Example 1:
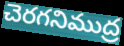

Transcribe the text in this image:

చెరగనిముద్ర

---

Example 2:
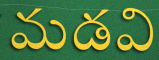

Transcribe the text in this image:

మడవి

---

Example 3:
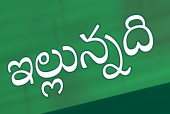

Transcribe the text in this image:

ఇల్లున్నది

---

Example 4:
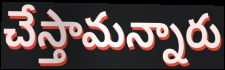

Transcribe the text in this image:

చేస్తామన్నారు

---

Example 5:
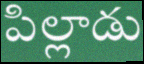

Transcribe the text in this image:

పిల్లాడు